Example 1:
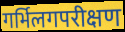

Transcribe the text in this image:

गर्भिलगपरीक्षण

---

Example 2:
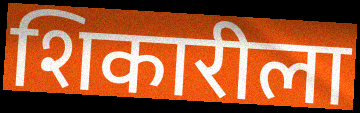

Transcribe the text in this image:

शिकारीला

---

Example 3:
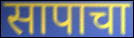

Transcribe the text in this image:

सापाचा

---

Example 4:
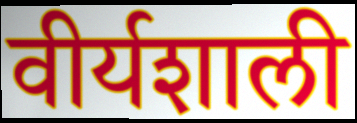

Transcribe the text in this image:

वीर्यशाली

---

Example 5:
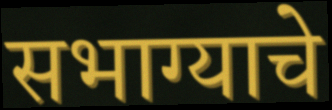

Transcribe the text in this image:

सभाग्याचे